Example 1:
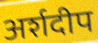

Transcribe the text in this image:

अर्शदीप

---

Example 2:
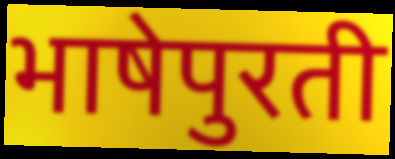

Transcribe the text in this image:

भाषेपुरती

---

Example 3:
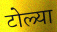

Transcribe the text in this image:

टोल्या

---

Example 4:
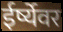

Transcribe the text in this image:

ईर्ष्येवर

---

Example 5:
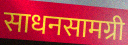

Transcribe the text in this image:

साधनसामग्री